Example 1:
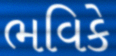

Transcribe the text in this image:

ભવિકે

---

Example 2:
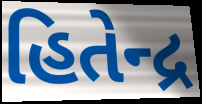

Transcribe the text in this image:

હિતેન્દ્ર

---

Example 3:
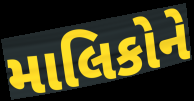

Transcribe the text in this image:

માલિકોને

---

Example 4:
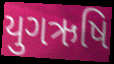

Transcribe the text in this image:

યુગઋષિ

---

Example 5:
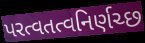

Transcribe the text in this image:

પરત્વતત્વનિર્ણચ્છ